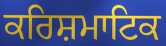
ਕਰਿਸ਼ਮਾਟਿਕ